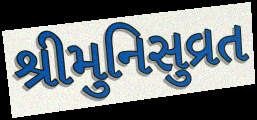
શ્રીમુનિસુવ્રત